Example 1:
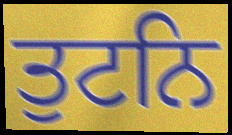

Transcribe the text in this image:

ਤੁਟਨਿ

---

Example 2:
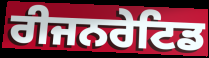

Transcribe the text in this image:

ਰੀਜਨਰੇਟਿਡ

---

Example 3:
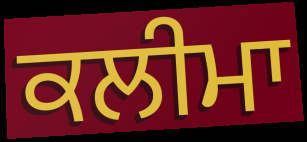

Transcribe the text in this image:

ਕਲੀਮਾ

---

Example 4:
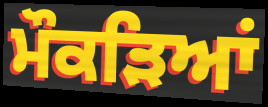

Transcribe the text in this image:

ਮੌਕੜਿਆਂ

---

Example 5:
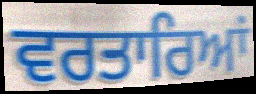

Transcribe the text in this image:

ਵਰਤਾਰਿਆਂ